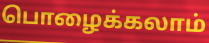
பொழைக்கலாம்